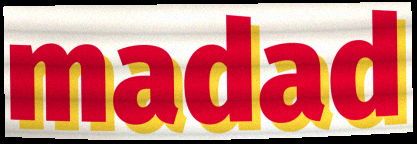
madad